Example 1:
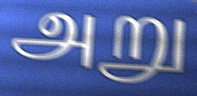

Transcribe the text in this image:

அறு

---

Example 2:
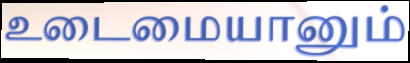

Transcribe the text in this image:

உடைமையானும்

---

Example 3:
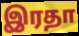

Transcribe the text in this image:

இரதா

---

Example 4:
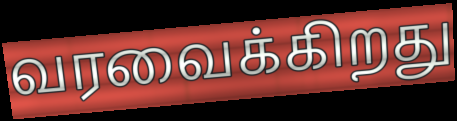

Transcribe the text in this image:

வரவைக்கிறது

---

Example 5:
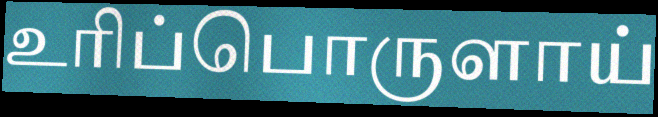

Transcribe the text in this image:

உரிப்பொருளாய்